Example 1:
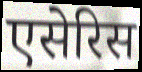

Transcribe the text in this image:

एसेरिस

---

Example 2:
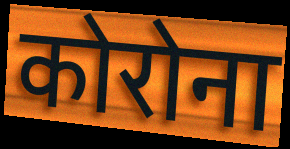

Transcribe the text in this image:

कोरोना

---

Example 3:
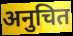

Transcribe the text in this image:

अनुचित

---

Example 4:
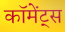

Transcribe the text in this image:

कॉमेंट्स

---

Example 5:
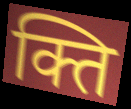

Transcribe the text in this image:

क्ति